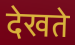
देखते